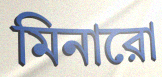
মিনারো